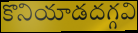
కొనియాడదగ్గవి